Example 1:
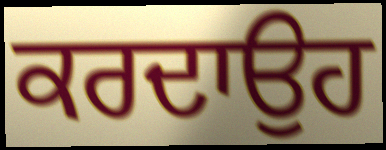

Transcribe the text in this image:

ਕਰਦਾਉਹ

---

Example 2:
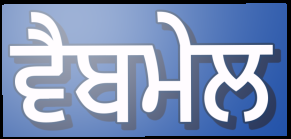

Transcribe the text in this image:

ਵੈਬਮੇਲ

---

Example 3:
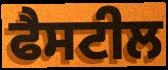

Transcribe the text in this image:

ਫੈਸਟੀਲ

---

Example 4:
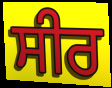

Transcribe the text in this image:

ਸੀਰ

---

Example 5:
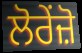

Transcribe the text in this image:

ਲੋਰੇਂਜ਼ੋ